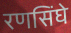
रणसिंघे